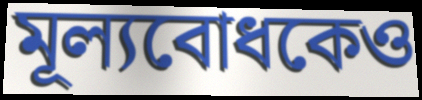
মূল্যবোধকেও